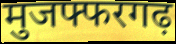
मुजफ्फरगढ़